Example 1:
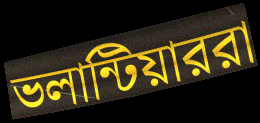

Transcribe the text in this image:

ভলান্টিয়াররা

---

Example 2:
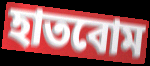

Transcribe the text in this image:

হাতবোম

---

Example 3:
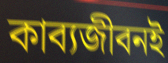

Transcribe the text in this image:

কাব্যজীবনই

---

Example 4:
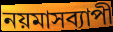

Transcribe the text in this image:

নয়মাসব্যাপী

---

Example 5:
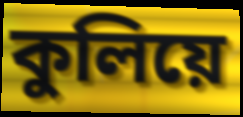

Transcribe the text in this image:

কুলিয়ে